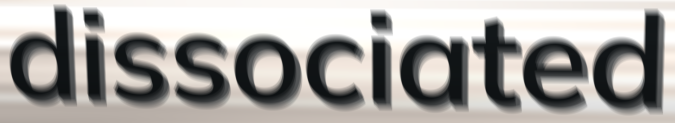
dissociated